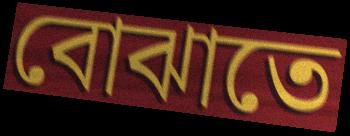
বোঝাতে